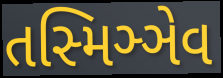
તસ્મિઞ્ઞેવ